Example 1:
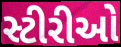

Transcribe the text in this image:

સ્ટીરીઓ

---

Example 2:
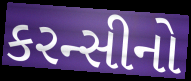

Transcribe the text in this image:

કરન્સીનો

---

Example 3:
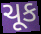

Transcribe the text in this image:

ચૂક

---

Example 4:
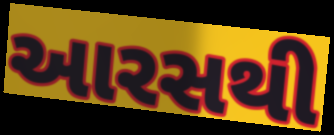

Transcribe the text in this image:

આરસથી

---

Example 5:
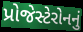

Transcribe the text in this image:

પ્રોજેસ્ટેરોનનું